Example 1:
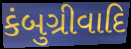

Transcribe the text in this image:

કંબુગ્રીવાદિ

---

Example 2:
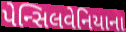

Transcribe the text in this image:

પેન્સિલવેનિયાના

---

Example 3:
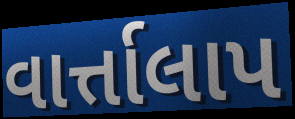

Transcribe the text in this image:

વાર્ત્તાલાપ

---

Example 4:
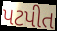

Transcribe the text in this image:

પટપીત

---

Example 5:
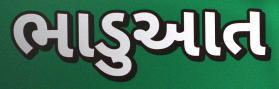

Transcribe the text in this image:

ભાડુઆત